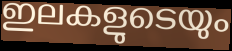
ഇലകളുടെയും